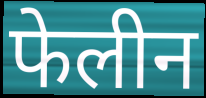
फेलीन